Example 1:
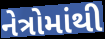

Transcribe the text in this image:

નેત્રોમાંથી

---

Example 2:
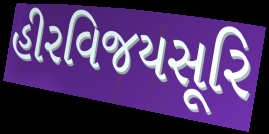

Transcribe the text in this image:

હીરવિજયસૂરિ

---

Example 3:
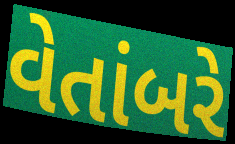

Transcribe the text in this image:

વેતાંબરે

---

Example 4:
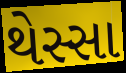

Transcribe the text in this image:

થેસ્સા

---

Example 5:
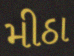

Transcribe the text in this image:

મીઠા